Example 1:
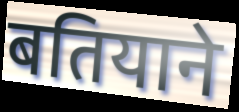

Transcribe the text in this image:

बतियाने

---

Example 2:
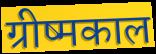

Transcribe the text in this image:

ग्रीष्मकाल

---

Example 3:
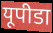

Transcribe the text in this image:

यूपीडा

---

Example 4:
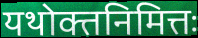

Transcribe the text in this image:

यथोक्तनिमित्तः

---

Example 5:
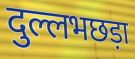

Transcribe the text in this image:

दुल्लभछड़ा